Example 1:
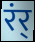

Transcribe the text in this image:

रंर्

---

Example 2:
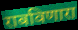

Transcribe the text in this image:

राबविणारा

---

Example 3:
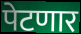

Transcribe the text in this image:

पेटणार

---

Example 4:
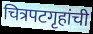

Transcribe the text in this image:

चित्रपटगृहांची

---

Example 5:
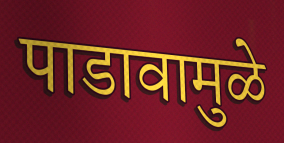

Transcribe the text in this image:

पाडावामुळे